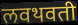
लवथवती